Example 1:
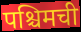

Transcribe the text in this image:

पश्चिमची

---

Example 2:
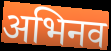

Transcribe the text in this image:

अभिनव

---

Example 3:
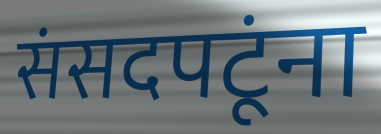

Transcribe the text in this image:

संसदपटूंना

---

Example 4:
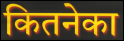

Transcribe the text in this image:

कितनेका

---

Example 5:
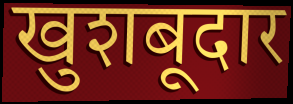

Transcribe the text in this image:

खुशबूदार